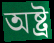
অষ্ট্ৰ